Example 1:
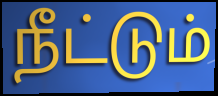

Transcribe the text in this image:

நீட்டும்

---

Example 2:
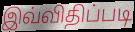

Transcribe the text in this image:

இவ்விதிப்படி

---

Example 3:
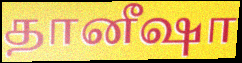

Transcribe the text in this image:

தானீஷா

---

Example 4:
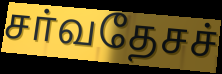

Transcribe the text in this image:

சர்வதேசச்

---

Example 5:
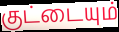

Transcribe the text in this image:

குட்டையும்